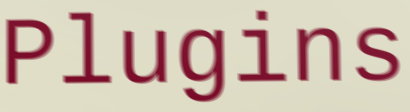
Plugins